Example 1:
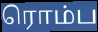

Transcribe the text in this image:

ரொம்ப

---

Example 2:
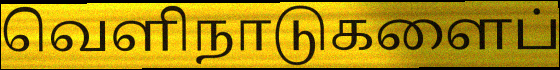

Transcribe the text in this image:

வெளிநாடுகளைப்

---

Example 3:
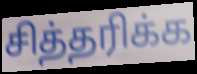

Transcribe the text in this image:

சித்தரிக்க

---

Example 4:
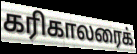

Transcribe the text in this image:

கரிகாலரைக்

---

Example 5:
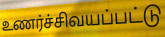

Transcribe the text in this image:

உணர்ச்சிவயப்பட்டு